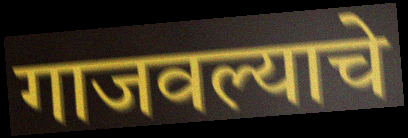
गाजवल्याचे